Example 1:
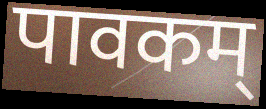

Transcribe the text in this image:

पावकम्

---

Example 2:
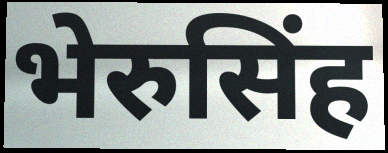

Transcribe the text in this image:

भेरुसिंह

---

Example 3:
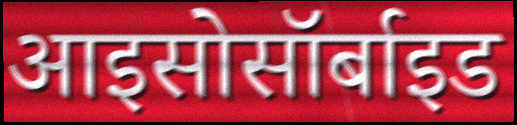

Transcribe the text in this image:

आइसोसॉर्बाइड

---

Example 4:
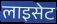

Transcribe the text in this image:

लाइसेट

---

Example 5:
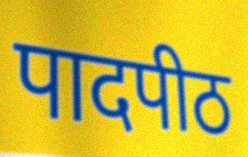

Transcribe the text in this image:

पादपीठ